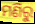
ମଣିରୁ